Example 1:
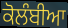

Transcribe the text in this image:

ਕੋਲੰਬੀਆ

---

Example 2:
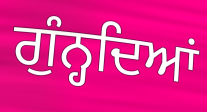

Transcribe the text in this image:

ਗੁੰਨ੍ਹਦਿਆਂ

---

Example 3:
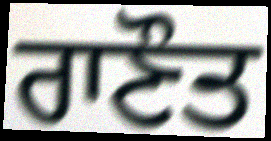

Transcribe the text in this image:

ਰਾਣੌਤ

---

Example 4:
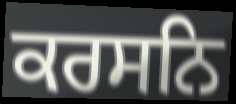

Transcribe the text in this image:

ਕਰਸਨਿ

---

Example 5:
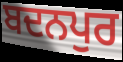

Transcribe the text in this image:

ਬਦਨਪੁਰ